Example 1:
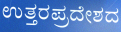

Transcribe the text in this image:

ಉತ್ತರಪ್ರದೇಶದ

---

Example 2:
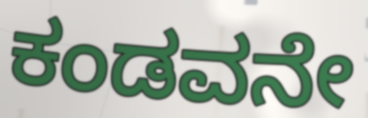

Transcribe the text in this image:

ಕಂಡವನೇ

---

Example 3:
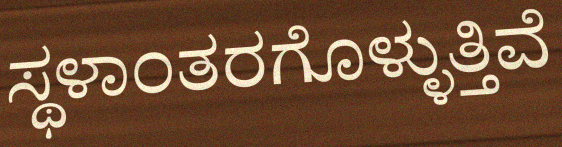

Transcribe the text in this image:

ಸ್ಥಳಾಂತರಗೊಳ್ಳುತ್ತಿವೆ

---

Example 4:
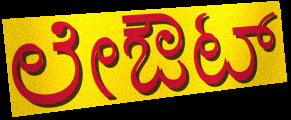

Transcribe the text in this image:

ಲೇಔಟ್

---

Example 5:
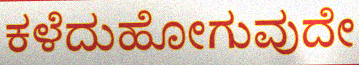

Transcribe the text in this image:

ಕಳೆದುಹೋಗುವುದೇ